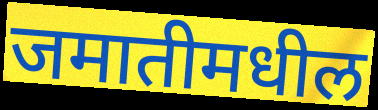
जमातीमधील